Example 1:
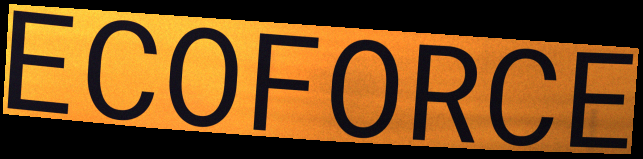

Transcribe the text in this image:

ECOFORCE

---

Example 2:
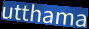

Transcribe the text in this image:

utthama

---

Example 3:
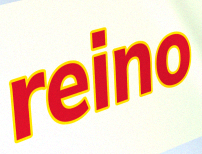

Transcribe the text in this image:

reino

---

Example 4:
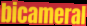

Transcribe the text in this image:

bicameral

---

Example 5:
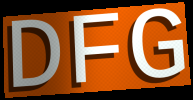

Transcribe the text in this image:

DFG